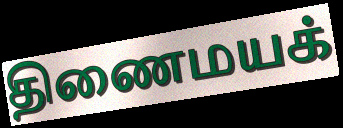
திணைமயக்